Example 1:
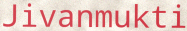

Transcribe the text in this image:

Jivanmukti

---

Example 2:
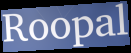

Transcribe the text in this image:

Roopal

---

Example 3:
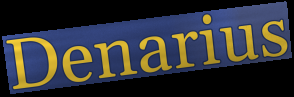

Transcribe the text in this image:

Denarius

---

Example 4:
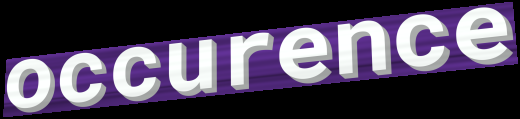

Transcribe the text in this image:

occurence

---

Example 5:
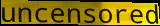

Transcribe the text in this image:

uncensored